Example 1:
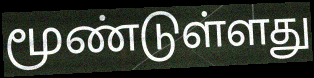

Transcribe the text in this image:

மூண்டுள்ளது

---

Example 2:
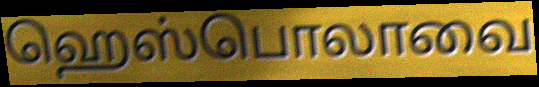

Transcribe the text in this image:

ஹெஸ்பொலாவை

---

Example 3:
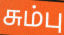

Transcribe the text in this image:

சும்பு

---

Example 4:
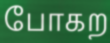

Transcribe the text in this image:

போகற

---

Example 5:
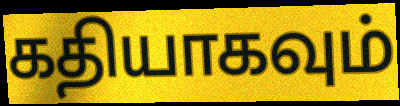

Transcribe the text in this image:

கதியாகவும்